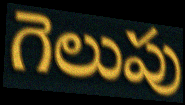
గెలుపు